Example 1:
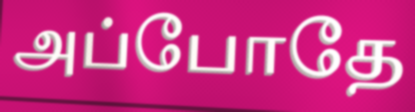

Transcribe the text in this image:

அப்போதே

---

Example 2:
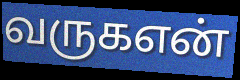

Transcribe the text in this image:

வருகஎன்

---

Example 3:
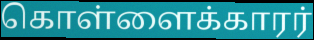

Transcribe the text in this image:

கொள்ளைக்காரர்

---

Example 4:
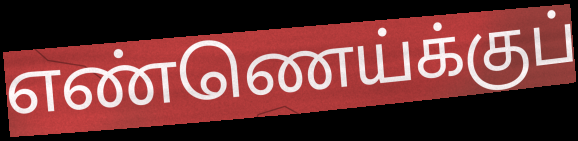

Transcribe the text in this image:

எண்ணெய்க்குப்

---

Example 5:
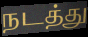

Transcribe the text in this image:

நடத்து